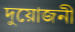
দুয়োজনী